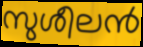
സുശീലൻ